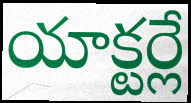
యాక్టర్లే